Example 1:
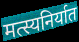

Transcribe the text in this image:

मत्स्यनिर्यात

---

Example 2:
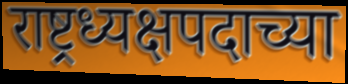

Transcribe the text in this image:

राष्ट्रध्यक्षपदाच्या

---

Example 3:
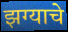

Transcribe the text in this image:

झग्याचे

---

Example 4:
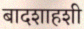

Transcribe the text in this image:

बादशाहशी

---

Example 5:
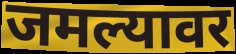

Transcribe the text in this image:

जमल्यावर